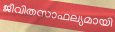
ജീവിതസാഫല്യമായി